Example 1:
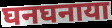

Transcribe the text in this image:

घनघनाया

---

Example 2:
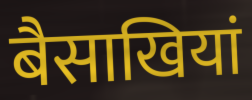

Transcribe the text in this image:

बैसाखियां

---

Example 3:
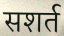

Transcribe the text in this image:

सशर्त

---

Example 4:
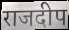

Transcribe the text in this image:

राजदीप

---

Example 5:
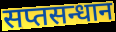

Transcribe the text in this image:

सप्तसन्धान